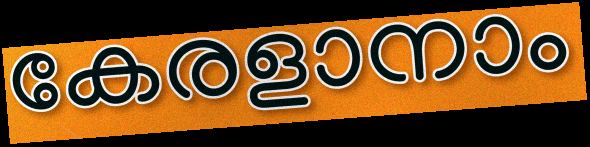
കേരളാനാം